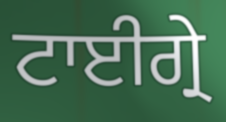
ਟਾਈਗ੍ਰੇ